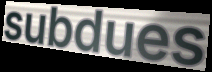
subdues